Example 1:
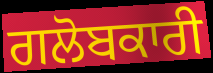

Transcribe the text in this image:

ਗਲੋਬਕਾਰੀ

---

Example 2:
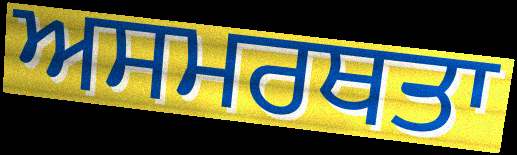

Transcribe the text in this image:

ਅਸਮਰਥਤਾ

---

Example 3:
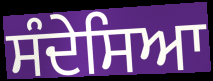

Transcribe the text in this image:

ਸੰਦੇਸਿਆ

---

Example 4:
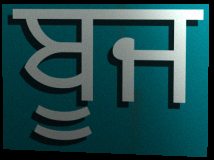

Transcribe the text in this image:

ਬੂਜ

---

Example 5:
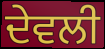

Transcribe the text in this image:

ਦੇਵਲੀ